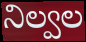
నిల్వల